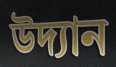
উদ্যান